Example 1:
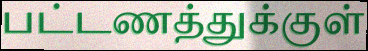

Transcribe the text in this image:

பட்டணத்துக்குள்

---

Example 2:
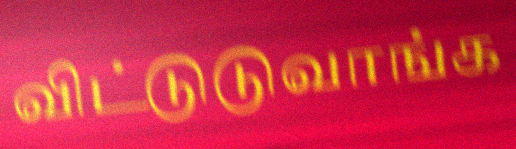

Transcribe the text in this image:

விட்டுடுவாங்க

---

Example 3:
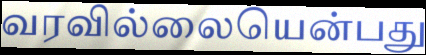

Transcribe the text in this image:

வரவில்லையென்பது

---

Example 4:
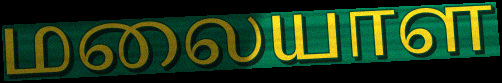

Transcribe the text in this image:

மலையாள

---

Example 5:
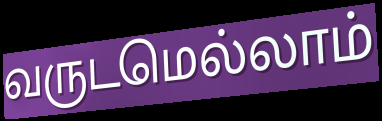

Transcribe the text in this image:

வருடமெல்லாம்